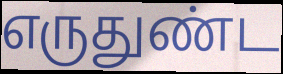
எருதுண்ட